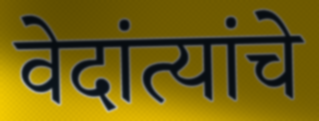
वेदांत्यांचे